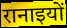
रानाइयों